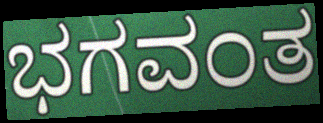
ಭಗವಂತ